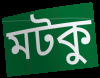
মটকু